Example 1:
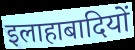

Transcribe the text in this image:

इलाहाबादियों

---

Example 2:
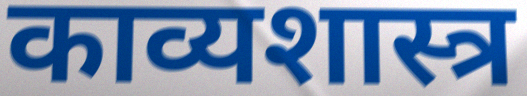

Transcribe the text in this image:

काव्यशास्त्र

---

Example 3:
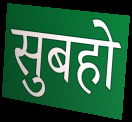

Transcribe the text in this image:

सुबहो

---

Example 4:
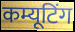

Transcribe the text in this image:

कम्यूटिंग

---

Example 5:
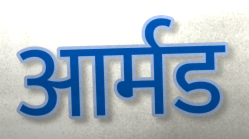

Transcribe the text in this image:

आर्मड